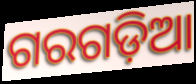
ଗରଗଡ଼ିଆ